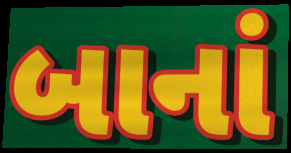
બાનાં